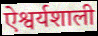
ऐश्वर्यशाली